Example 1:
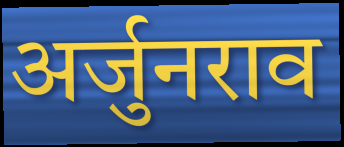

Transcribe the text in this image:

अर्जुनराव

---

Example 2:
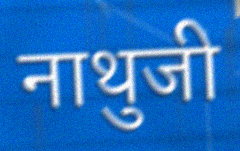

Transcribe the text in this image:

नाथुजी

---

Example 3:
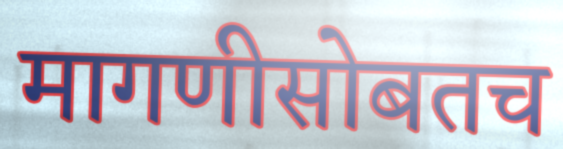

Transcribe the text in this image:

मागणीसोबतच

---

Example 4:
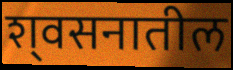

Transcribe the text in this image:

श्वसनातील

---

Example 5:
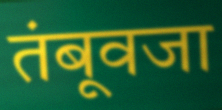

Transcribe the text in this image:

तंबूवजा